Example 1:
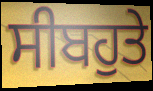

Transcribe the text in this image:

ਸੀਬਹੁਤੇ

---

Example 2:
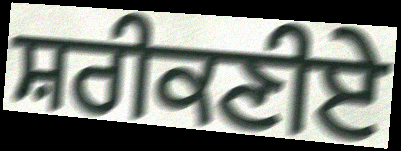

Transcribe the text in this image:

ਸ਼ਰੀਕਣੀਏ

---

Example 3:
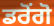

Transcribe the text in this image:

ਡਰੋਂਗੋ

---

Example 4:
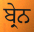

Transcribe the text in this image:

ਬ੍ਰੇਨ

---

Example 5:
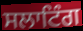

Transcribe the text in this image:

ਸਲਾਟਿੰਗ